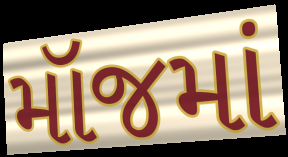
મૉજમાં